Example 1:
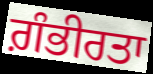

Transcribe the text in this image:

ਗ਼ੰਭੀਰਤਾ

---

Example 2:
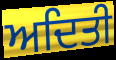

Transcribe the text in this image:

ਅਦਿਤੀ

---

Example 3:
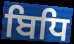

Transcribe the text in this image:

ਬਿਧਿ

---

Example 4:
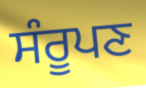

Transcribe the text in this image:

ਸੰਰੂਪਣ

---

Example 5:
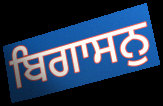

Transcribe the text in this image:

ਬਿਗਾਸਨੁ